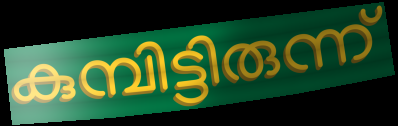
കുമ്പിട്ടിരുന്ന്